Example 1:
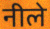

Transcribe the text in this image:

नीले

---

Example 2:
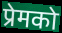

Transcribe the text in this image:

प्रेमको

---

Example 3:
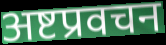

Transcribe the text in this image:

अष्टप्रवचन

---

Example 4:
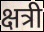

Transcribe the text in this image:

क्षत्री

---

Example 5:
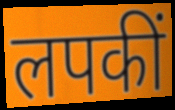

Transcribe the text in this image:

लपकीं